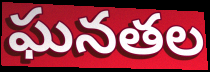
ఘనతల